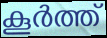
കൂർത്ത്